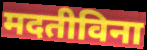
मदतीविना